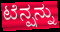
ಟೆನ್ಷನ್ನು